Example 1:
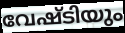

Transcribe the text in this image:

വേഷ്ടിയും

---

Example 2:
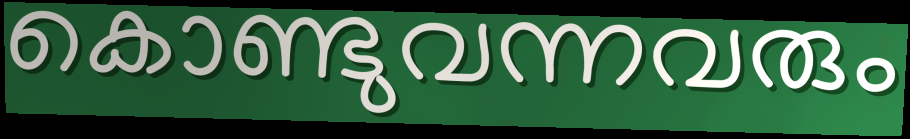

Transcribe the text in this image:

കൊണ്ടുവന്നവരും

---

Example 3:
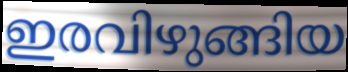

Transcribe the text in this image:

ഇരവിഴുങ്ങിയ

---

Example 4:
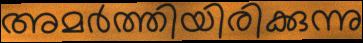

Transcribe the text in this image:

അമർത്തിയിരിക്കുന്നു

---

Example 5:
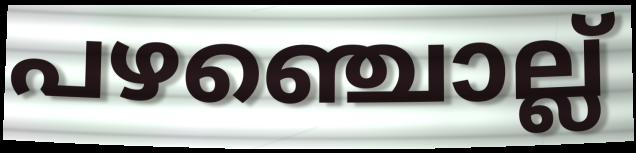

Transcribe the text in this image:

പഴഞ്ചൊല്ല്